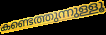
കണ്ടെത്തുന്നുള്ളൂ